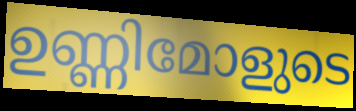
ഉണ്ണിമോളുടെ